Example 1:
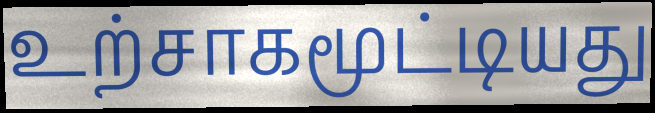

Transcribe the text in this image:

உற்சாகமூட்டியது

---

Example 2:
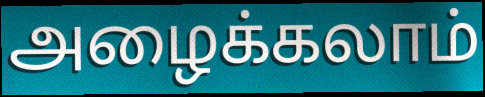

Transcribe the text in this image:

அழைக்கலாம்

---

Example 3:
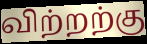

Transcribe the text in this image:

விற்றற்கு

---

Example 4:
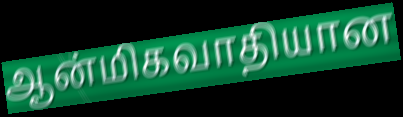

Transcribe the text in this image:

ஆன்மிகவாதியான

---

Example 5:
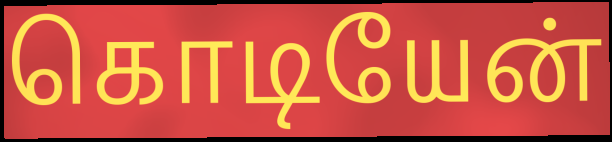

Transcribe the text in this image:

கொடியேன்